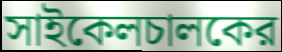
সাইকেলচালকের